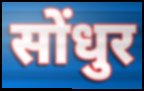
सोंधुर